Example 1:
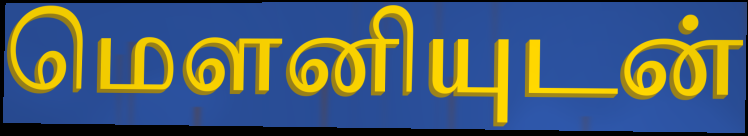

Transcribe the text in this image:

மௌனியுடன்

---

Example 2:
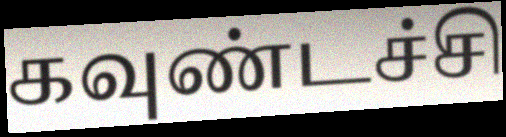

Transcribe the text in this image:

கவுண்டச்சி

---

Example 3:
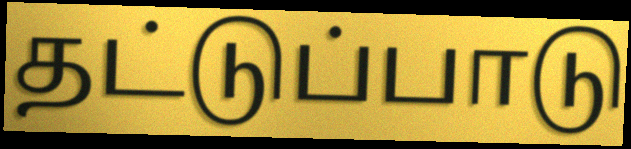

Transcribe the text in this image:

தட்டுப்பாடு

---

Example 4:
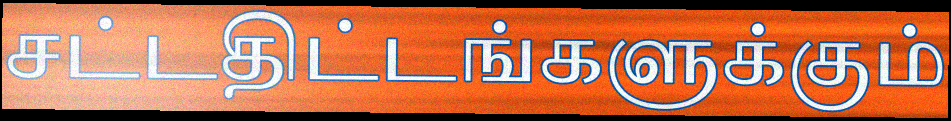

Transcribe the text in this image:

சட்டதிட்டங்களுக்கும்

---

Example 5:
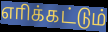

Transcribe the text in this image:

எரிக்கட்டும்